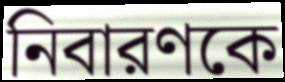
নিবারণকে